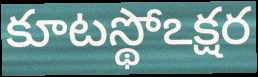
కూటస్థోఽక్షర